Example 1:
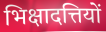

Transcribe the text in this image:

भिक्षादत्तियों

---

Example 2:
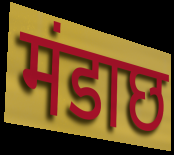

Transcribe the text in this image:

मंडाछ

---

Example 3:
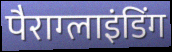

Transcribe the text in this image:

पैराग्लाइंडिंग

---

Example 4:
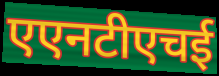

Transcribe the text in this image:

एएनटीएचई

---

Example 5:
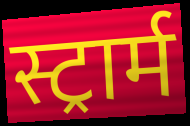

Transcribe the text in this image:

स्ट्रार्म